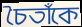
চৈতাঁকে